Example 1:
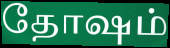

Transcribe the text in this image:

தோஷம்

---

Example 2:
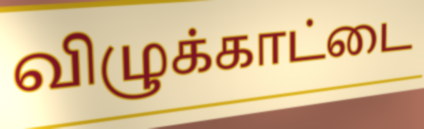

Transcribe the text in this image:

விழுக்காட்டை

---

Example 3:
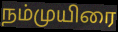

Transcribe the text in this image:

நம்முயிரை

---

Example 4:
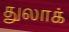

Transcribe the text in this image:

துலாக்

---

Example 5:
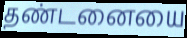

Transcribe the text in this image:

தண்டனையை